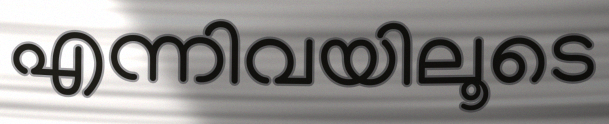
എന്നിവയിലൂടെ